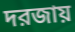
দরজায়